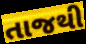
તાજથી